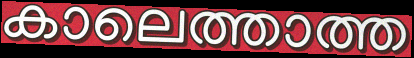
കാലെത്താത്ത